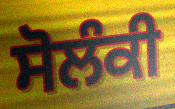
ਸੋਲੰਕੀ